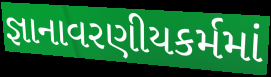
જ્ઞાનાવરણીયકર્મમાં